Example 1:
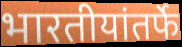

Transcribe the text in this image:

भारतीयांतर्फे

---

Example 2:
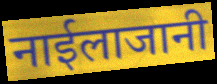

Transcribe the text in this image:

नाईलाजानी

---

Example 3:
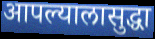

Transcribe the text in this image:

आपल्यालासुद्धा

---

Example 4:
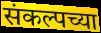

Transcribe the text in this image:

संकल्पच्या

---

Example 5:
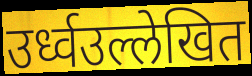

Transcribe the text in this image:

उर्ध्वउल्लेखित